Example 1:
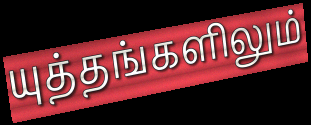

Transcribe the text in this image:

யுத்தங்களிலும்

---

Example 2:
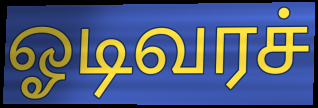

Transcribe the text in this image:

ஓடிவரச்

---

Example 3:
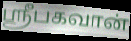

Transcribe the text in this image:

ஸ்ரீபகவான்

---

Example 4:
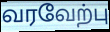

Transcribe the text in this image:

வரவேற்பு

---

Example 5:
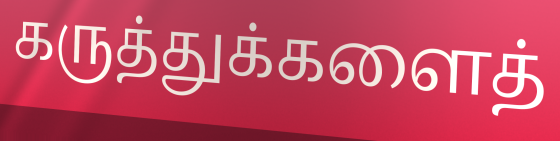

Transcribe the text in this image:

கருத்துக்களைத்